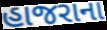
હાજરાના